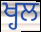
ਖ੍ਹਲ